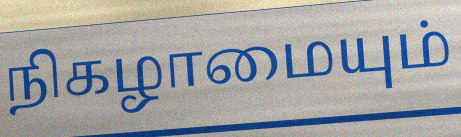
நிகழாமையும்